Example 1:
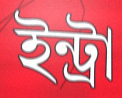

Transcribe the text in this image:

ইন্ট্রা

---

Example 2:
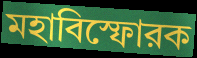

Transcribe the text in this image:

মহাবিস্ফোরক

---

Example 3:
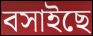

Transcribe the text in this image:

বসাইছে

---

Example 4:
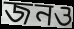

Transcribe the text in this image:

জনও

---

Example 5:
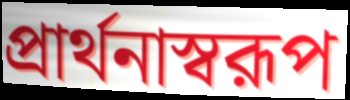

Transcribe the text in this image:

প্রার্থনাস্বরূপ